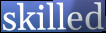
skilled